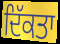
ਦਿੱਕਤਾ